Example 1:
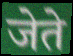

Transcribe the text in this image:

जेते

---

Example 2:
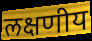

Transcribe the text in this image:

लक्षणीय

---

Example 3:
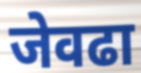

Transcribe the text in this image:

जेवढा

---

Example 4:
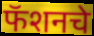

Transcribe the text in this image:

फॅशनचे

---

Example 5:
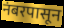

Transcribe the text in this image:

नंबरपासून